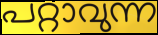
പറ്റാവുന്ന